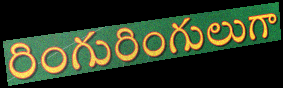
రింగురింగులుగా